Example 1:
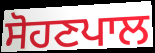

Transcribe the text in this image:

ਸੋਹਣਪਾਲ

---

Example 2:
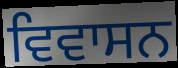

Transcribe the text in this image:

ਵਿਵਾਸਨ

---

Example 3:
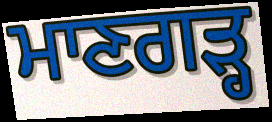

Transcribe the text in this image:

ਮਾਣਗੜ੍ਹ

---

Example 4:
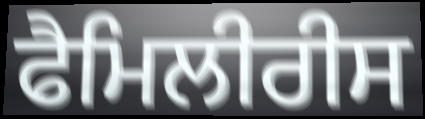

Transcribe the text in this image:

ਫੈਮਿਲੀਰੀਸ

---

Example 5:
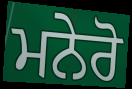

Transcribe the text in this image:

ਮਨੇਰੋ